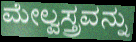
ಮೇಲ್ವಸ್ತ್ರವನ್ನು